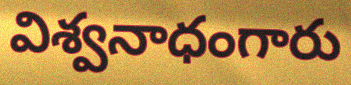
విశ్వనాధంగారు